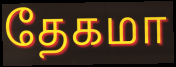
தேகமா